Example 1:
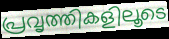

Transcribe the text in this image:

പ്രവൃത്തികളിലൂടെ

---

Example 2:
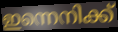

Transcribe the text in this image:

ഇന്നെനിക്ക്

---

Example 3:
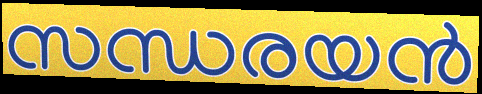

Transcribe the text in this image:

സന്ധരയൻ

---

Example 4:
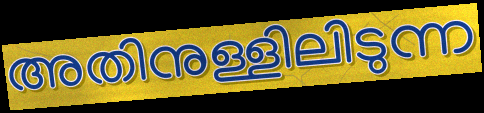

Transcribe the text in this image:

അതിനുള്ളിലിടുന്ന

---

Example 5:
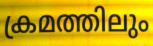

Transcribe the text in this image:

ക്രമത്തിലും